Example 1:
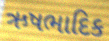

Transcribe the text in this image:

ઋષભાદિક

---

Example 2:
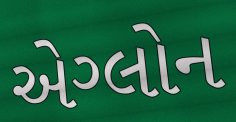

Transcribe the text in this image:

એગ્લોન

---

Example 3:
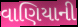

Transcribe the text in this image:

વાણિયાની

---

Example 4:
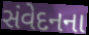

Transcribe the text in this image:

સંવેદનના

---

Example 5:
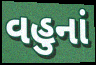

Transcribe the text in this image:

વહુનાં